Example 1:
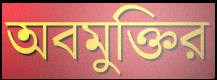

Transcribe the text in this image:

অবমুক্তির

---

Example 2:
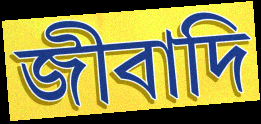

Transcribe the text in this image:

জীবাদি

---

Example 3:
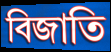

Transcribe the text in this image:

বিজাতি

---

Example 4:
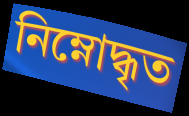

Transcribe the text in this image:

নিম্নোদ্ধৃত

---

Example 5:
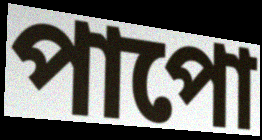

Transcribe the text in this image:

পাপো